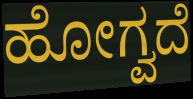
ಹೋಗ್ವದೆ